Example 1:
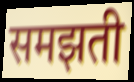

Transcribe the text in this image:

समझती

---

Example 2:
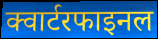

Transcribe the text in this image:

क्वार्टरफाइनल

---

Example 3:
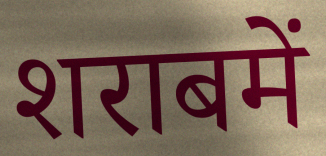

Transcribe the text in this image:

शराबमें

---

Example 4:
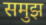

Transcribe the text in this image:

समुझ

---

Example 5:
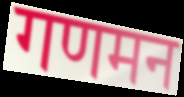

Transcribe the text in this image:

गणमन